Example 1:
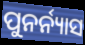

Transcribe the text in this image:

ପୁନର୍ନ୍ୟାସ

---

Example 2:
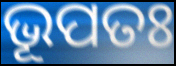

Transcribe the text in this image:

ଭୂପତଃ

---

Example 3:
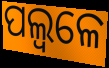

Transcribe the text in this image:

ପଲ୍ୱଳେ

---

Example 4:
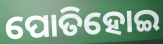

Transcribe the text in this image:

ପୋତିହୋଇ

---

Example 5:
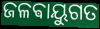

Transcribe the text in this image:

ଜଳଵାୟୁଗତ